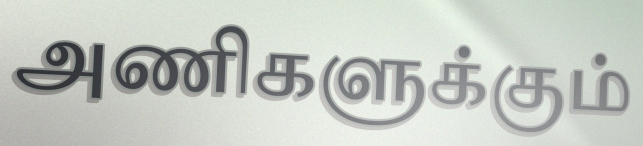
அணிகளுக்கும்